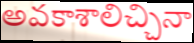
అవకాశాలిచ్చినా